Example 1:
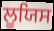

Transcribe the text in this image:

ਲੂਯਿਸ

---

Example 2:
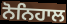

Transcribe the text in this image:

ਨੋਨਿਹਾਲ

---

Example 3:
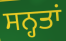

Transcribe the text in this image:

ਸਨ੍ਹਤਾਂ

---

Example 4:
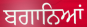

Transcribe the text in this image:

ਬਗਾਨਿਆਂ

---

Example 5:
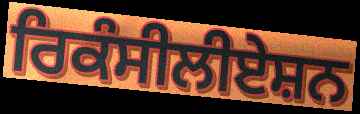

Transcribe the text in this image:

ਰਿਕੰਸੀਲੀਏਸ਼ਨ